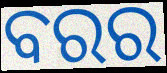
ବରର